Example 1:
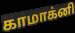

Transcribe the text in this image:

காமாக்னி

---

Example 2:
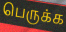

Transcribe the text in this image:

பெருக்க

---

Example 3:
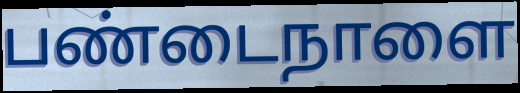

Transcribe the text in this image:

பண்டைநாளை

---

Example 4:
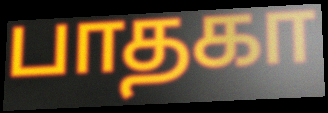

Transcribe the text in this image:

பாதகா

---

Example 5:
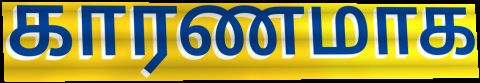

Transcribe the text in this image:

காரணமாக